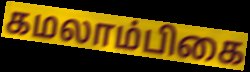
கமலாம்பிகை